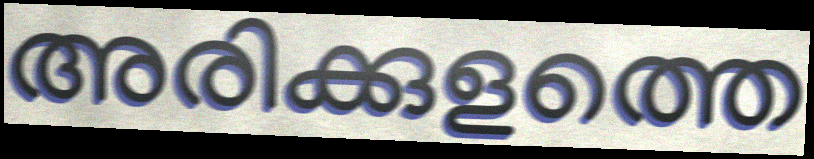
അരിക്കുളത്തെ